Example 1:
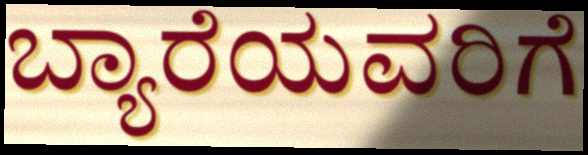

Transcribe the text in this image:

ಬ್ಯಾರೆಯವರಿಗೆ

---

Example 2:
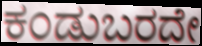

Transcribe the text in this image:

ಕಂಡುಬರದೇ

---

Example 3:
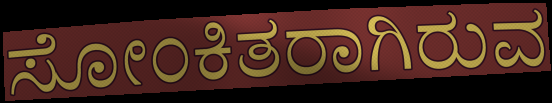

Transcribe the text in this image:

ಸೋಂಕಿತರಾಗಿರುವ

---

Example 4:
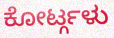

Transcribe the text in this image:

ಕೋರ್ಟ್ಗಳು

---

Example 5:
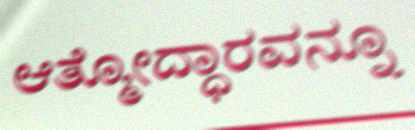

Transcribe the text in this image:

ಆತ್ಮೋದ್ಧಾರವನ್ನೂ